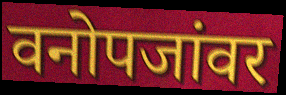
वनोपजांवर